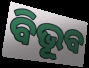
ବିଭୂବ